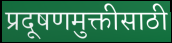
प्रदूषणमुक्तीसाठी